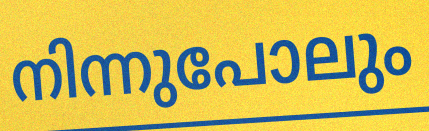
നിന്നുപോലും